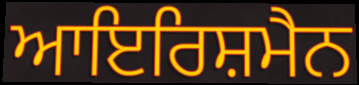
ਆਇਰਿਸ਼ਮੈਨ